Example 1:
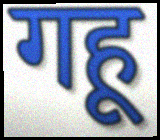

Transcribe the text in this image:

गहू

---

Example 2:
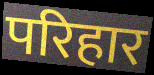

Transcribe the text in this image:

परिहार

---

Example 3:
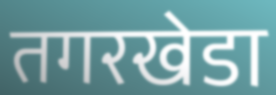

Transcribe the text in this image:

तगरखेडा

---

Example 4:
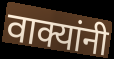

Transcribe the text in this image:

वाक्यांनी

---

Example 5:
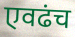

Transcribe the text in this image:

एवढंच